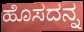
ಹೊಸದನ್ನ